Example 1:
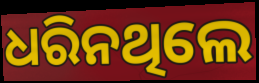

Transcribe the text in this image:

ଧରିନଥିଲେ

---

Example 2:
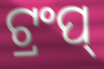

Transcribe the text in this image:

ଟ୍ରଂପ୍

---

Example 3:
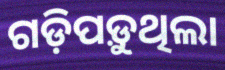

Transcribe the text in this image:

ଗଡ଼ିପଡ଼ୁଥିଲା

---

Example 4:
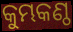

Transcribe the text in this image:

କୁମ୍ଭକଣ୍ଠ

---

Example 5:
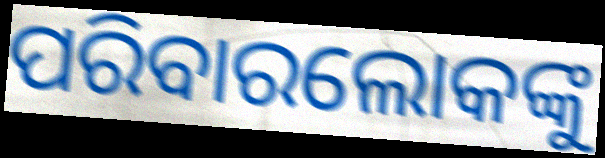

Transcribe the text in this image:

ପରିବାରଲୋକଙ୍କୁ